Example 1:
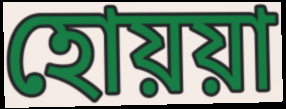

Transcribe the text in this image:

হোয়য়া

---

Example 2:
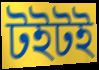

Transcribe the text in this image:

টইটই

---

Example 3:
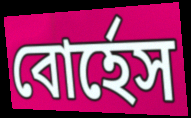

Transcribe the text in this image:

বোর্হেস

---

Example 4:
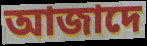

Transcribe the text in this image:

আজাদে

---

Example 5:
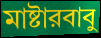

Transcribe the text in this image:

মাষ্টারবাবু